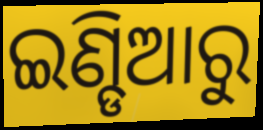
ଇଣ୍ଡିଆରୁ